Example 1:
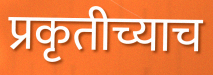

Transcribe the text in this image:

प्रकृतीच्याच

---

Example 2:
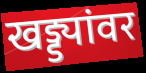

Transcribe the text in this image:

खड्ड्यांवर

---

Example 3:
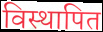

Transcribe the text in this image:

विस्थापित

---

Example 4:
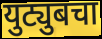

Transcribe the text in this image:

युट्युबचा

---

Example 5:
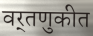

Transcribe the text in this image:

वर्तणुकीत